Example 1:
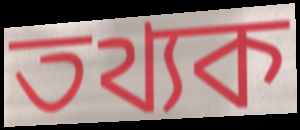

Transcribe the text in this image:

তথ্যক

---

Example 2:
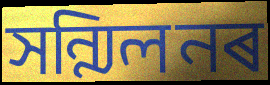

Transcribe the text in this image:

সন্মিলনৰ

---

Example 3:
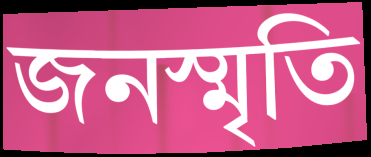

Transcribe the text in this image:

জনস্মৃতি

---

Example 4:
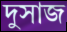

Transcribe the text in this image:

দুসাজ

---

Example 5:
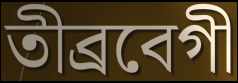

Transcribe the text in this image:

তীব্ৰবেগী